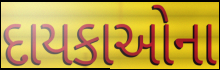
દાયકાઓના